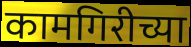
कामगिरीच्या